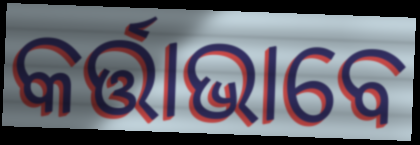
କର୍ତ୍ତାଭାବେ